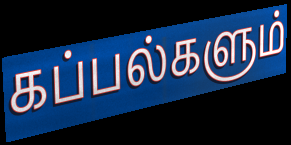
கப்பல்களும்